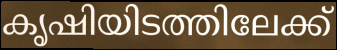
കൃഷിയിടത്തിലേക്ക്